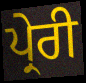
ਪ੍ਰੇਰੀ